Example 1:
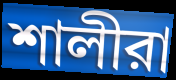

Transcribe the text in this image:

শালীরা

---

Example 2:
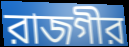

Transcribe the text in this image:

রাজগীর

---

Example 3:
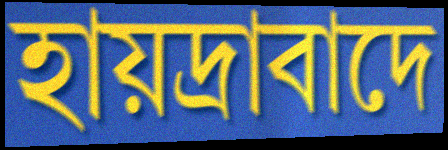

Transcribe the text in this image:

হায়দ্রাবাদে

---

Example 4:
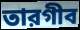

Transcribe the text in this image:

তারগীব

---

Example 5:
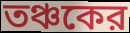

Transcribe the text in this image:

তঞ্চকের